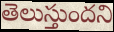
తెలుస్తుందని